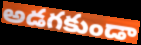
అడగకుండా